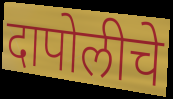
दापोलीचे